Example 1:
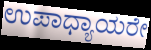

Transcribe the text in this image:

ಉಪಾಧ್ಯಾಯರೇ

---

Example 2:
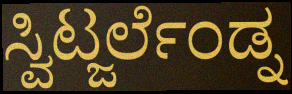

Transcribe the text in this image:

ಸ್ವಿಟ್ಜರ್ಲೆಂಡ್ನ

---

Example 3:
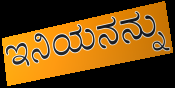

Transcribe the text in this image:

ಇನಿಯನನ್ನು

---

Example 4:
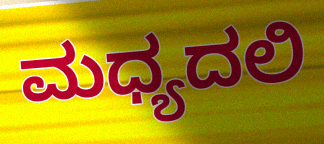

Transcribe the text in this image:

ಮಧ್ಯದಲಿ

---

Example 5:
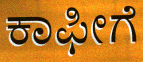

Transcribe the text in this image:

ಕಾಫೀಗೆ